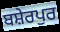
ਬਸ਼ੇਰਪੁਰ